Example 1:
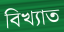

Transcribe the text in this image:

বিখ্যাত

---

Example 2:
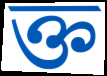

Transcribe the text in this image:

ক্ত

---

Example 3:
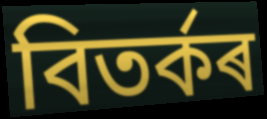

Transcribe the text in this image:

বিতৰ্কৰ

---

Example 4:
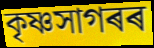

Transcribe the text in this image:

কৃষ্ণসাগৰৰ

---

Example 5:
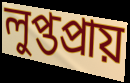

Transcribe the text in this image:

লুপ্তপ্ৰায়